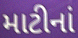
માટીનાં